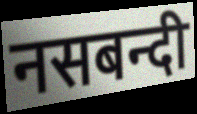
नसबन्दी